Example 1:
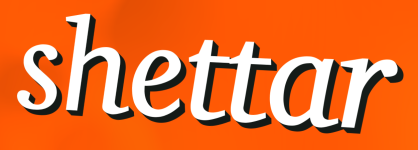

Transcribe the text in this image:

shettar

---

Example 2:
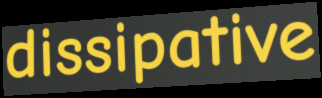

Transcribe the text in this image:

dissipative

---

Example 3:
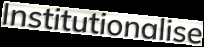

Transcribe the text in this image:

Institutionalise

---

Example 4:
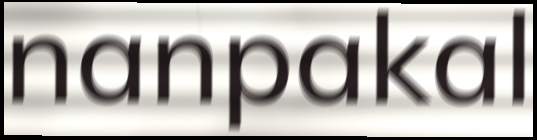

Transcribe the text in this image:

nanpakal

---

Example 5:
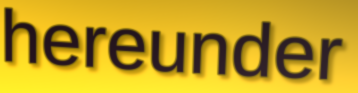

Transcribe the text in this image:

hereunder